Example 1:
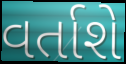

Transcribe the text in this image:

વર્તાશે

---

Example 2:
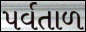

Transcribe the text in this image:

પર્વતાળ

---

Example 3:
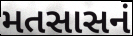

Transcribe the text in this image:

મતસાસનં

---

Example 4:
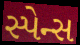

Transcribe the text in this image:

સ્પેન્સ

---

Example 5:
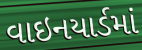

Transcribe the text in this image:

વાઇનયાર્ડમાં